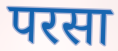
परसा